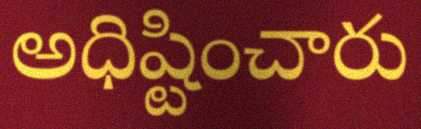
అధిష్టించారు